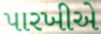
પારખીએ